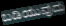
ಬಡಿಯುವುದು